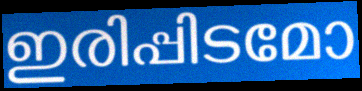
ഇരിപ്പിടമോ